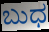
ಬುಧ